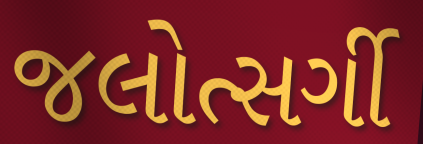
જલોત્સર્ગી